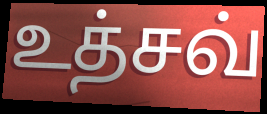
உத்சவ்